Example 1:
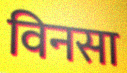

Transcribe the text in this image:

विनसा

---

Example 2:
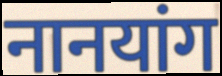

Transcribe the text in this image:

नानयांग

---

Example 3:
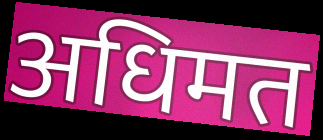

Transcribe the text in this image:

अधिमत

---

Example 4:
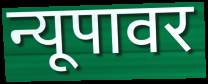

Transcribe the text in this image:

न्यूपावर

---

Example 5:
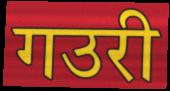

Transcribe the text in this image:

गउरी